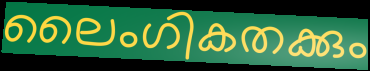
ലൈംഗികതക്കും